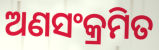
ଅଣସଂକ୍ରମିତ